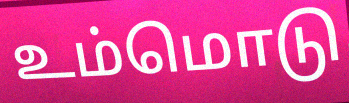
உம்மொடு